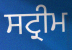
ਸਟ੍ਰੀਮ